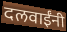
दलवाईंनी